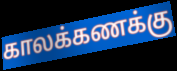
காலக்கணக்கு